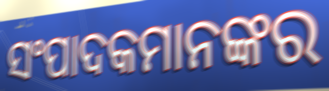
ସଂପାଦକମାନଙ୍କର